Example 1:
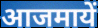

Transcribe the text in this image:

आजमायें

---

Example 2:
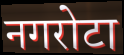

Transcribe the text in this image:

नगरोटा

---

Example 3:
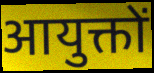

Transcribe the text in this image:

आयुक्तों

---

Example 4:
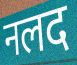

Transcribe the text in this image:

नलद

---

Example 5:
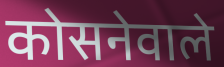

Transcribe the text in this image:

कोसनेवाले